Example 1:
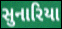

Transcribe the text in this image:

સુનારિયા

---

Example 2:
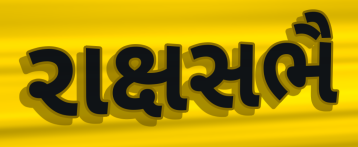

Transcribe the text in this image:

રાક્ષસભૈ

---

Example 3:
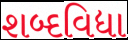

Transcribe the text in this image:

શબ્દવિદ્યા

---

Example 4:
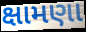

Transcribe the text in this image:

ક્ષામણા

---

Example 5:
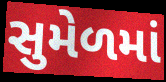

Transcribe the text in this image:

સુમેળમાં